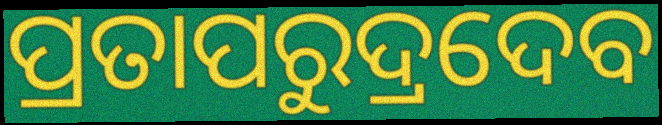
ପ୍ରତାପରୁଦ୍ରଦେବ